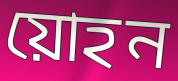
য়োহন